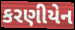
કરણીયેન